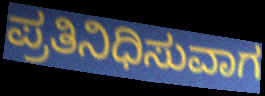
ಪ್ರತಿನಿಧಿಸುವಾಗ